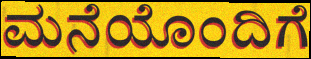
ಮನೆಯೊಂದಿಗೆ